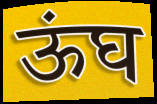
ऊंघ